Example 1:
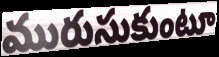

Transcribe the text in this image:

మురుసుకుంటూ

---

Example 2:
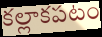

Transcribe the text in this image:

కల్లాకపటం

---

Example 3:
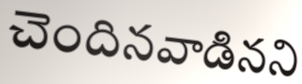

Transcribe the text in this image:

చెందినవాడినని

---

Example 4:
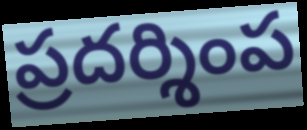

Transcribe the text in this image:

ప్రదర్శింప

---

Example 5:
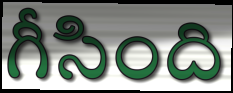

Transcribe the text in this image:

గీసింది